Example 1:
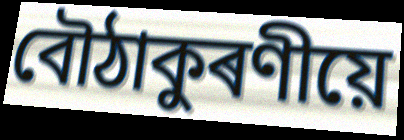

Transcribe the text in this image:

বৌঠাকুৰণীয়ে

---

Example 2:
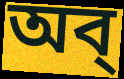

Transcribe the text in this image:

অব্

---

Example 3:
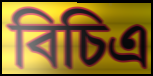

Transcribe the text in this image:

বিচিএ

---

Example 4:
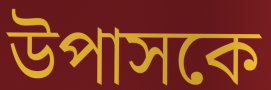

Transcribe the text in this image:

উপাসকে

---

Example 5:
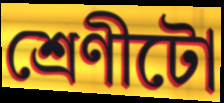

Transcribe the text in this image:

শ্ৰেণীটো